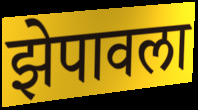
झेपावला